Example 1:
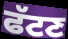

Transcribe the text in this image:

ਫੱਟਣ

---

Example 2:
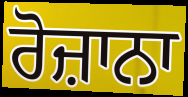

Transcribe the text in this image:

ਰੋਜ਼ਾਨਾ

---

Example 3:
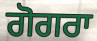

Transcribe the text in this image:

ਗੋਗਰਾ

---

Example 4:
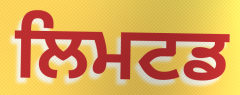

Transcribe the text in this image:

ਲਿਮਟਡ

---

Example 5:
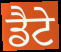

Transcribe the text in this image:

ਡੈਟੇ